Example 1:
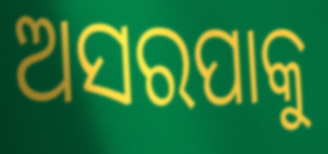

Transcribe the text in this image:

ଅସରପାକୁ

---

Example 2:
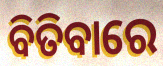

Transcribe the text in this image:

ବିତିବାରେ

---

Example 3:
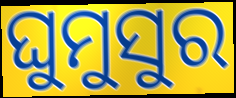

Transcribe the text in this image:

ଘୁମୁସୁର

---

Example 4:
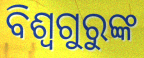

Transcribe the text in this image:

ବିଶ୍ୱଗୁରୁଙ୍କ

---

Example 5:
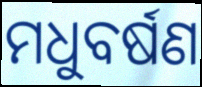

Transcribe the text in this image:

ମଧୁବର୍ଷଣ